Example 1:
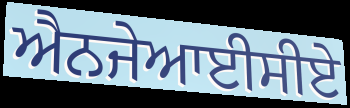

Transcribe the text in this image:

ਐਨਜੇਆਈਸੀਏ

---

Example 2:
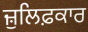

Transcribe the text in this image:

ਜ਼ੁਲਿਫ਼ਕਾਰ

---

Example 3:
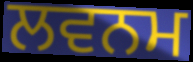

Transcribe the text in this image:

ਲਵਨਮ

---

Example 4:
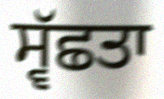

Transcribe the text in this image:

ਸ੍ਵੱਛਤਾ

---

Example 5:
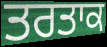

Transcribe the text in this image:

ਤਰਤਾਕ